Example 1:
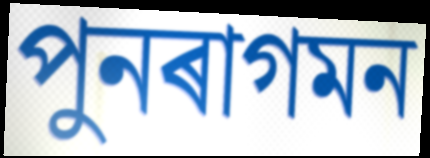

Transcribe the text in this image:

পুনৰাগমন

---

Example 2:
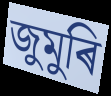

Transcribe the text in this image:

জুমুৰি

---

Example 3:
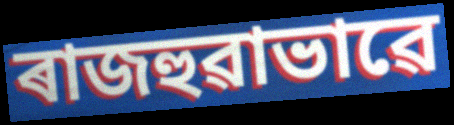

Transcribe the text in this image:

ৰাজহুৱাভাৱে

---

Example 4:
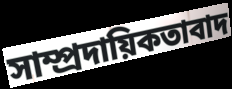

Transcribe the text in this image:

সাম্প্ৰদায়িকতাবাদ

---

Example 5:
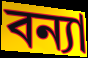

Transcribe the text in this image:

বন্যা